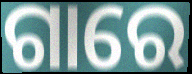
ଗାରେ